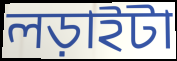
লড়াইটা